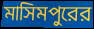
মাসিমপুরের